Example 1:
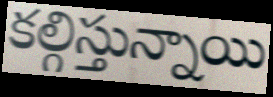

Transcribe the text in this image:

కల్గిస్తున్నాయి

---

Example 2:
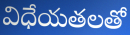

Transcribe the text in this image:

విధేయతలతో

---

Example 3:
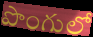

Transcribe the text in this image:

పొంగులో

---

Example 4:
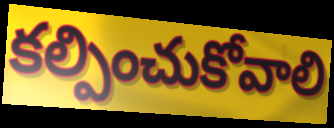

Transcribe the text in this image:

కల్పించుకోవాలి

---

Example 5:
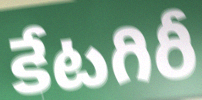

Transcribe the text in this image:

కేటగిరీ